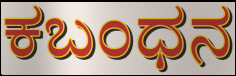
ಕಬಂಧನ